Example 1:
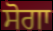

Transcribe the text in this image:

ਸੋਗਾ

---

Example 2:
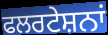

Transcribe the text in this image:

ਫਲਰਟੇਸ਼ਨਾਂ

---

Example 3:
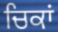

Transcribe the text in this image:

ਚਿਕਾਂ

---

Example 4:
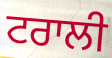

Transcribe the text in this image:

ਟਰਾਲੀ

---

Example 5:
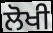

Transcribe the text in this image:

ਲੋਖੀ